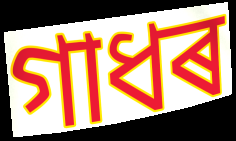
গাধৰ